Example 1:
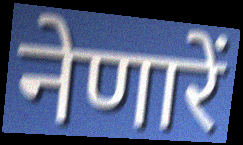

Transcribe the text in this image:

नेणारें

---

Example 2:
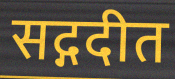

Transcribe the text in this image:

सद्गदीत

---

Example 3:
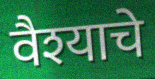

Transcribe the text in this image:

वैश्याचे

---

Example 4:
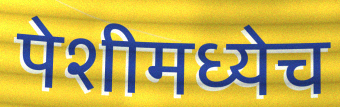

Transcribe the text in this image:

पेशीमध्येच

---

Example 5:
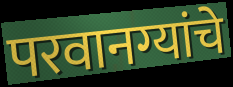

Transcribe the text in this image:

परवानग्यांचे